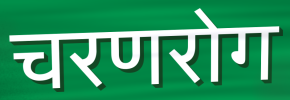
चरणरोग